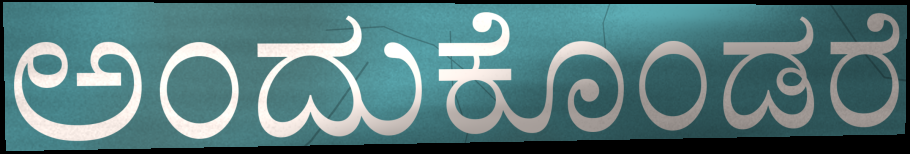
ಅಂದುಕೊಂಡರೆ